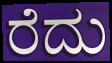
ರೆದು